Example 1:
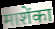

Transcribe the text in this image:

माशेंका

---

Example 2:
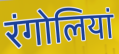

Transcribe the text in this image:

रंगोलियां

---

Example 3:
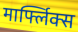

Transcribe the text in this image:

मार्फ्लिक्स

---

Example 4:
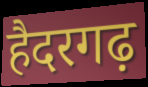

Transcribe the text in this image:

हैदरगढ़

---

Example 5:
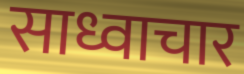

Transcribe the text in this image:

साध्वाचार